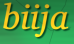
biija